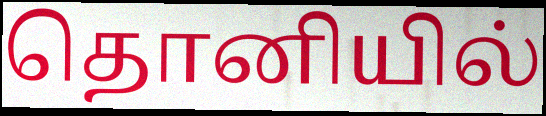
தொனியில்